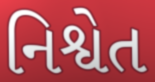
નિશ્વેત